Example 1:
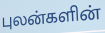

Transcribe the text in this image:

புலன்களின்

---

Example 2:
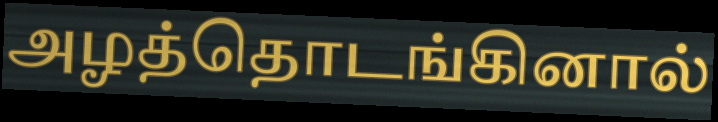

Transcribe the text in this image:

அழத்தொடங்கினால்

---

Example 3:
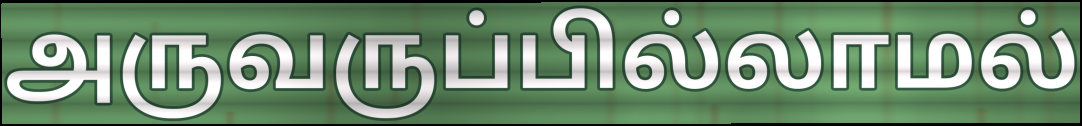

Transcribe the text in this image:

அருவருப்பில்லாமல்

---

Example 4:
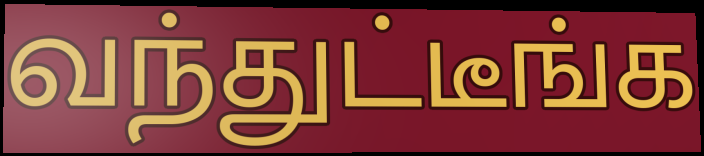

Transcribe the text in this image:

வந்துட்டீங்க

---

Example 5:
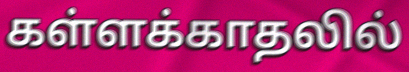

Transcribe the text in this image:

கள்ளக்காதலில்